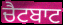
ਚੈਟਬਾਟ